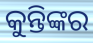
କୁନ୍ତିଙ୍କର